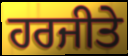
ਹਰਜੀਤੇ